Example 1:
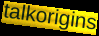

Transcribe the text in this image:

talkorigins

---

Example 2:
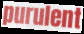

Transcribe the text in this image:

purulent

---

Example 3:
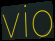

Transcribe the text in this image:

vio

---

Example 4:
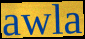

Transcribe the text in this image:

awla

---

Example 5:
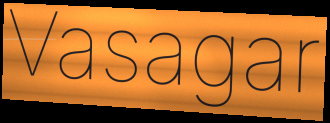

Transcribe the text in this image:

Vasagar